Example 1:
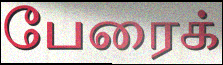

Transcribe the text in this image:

பேரைக்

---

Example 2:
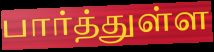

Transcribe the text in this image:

பார்த்துள்ள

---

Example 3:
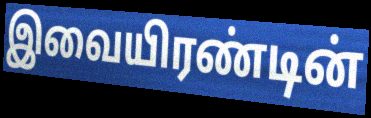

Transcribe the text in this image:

இவையிரண்டின்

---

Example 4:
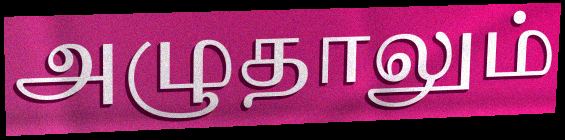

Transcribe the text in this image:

அழுதாலும்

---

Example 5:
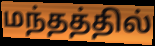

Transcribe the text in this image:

மந்தத்தில்